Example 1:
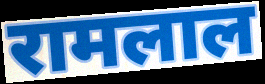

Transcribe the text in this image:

रामलाल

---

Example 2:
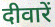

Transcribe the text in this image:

दीवारें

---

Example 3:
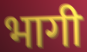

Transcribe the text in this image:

भागी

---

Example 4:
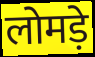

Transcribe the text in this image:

लोमड़े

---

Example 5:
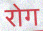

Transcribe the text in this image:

रोग